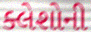
ક્લેશોની